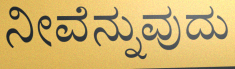
ನೀವೆನ್ನುವುದು